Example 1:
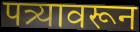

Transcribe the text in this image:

पत्र्यावरून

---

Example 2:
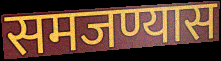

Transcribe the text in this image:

समजण्यास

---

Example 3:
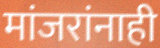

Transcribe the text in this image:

मांजरांनाही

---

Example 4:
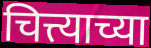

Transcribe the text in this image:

चित्त्याच्या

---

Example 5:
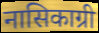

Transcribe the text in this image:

नासिकाग्री